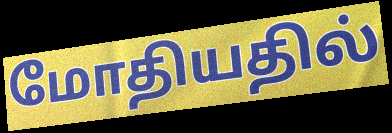
மோதியதில்